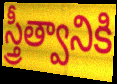
స్త్రీత్వానికి